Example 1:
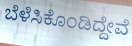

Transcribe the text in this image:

ಬೆಳೆಸಿಕೊಂಡಿದ್ದೇವೆ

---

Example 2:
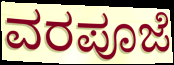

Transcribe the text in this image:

ವರಪೂಜೆ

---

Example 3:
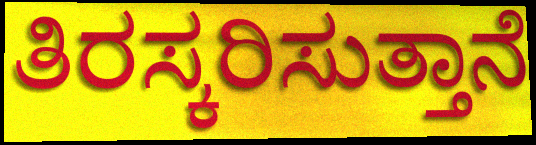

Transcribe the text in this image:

ತಿರಸ್ಕರಿಸುತ್ತಾನೆ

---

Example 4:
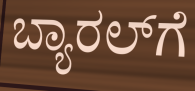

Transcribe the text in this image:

ಬ್ಯಾರಲ್‌ಗೆ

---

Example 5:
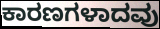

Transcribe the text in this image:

ಕಾರಣಗಳಾದವು